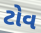
ટોવ